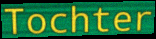
Tochter